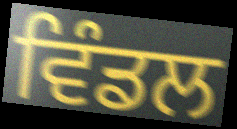
ਵਿੰਡਲ